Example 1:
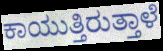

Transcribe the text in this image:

ಕಾಯುತ್ತಿರುತ್ತಾಳೆ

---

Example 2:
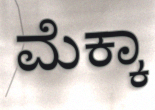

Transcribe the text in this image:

ಮೆಕ್ಕಾ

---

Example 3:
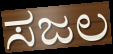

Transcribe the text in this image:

ಸಜಲ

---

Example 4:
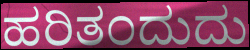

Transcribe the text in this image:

ಹರಿತಂದುದು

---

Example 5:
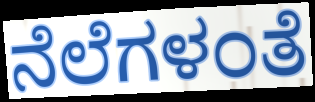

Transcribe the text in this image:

ನೆಲೆಗಳಂತೆ